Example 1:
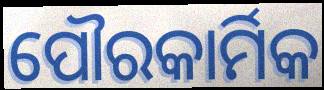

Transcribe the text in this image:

ପୌରକାର୍ମିକ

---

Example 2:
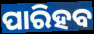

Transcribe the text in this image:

ପାରିହବ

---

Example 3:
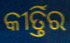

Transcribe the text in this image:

କୀର୍ତ୍ତିର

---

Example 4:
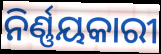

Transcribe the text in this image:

ନିର୍ଣ୍ଣୟକାରୀ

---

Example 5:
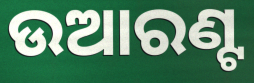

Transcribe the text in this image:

ଉଆରଣ୍ଟ